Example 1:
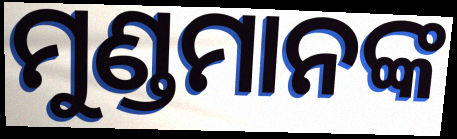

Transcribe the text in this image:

ମୁଣ୍ଡମାନଙ୍କ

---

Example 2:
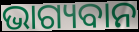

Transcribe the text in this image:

ଭାଗ୍ୟବାନ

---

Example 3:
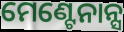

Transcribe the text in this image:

ମେଣ୍ଟେନାନ୍ସ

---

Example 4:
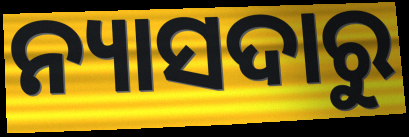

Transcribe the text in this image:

ନ୍ୟାସଦାରୁ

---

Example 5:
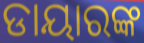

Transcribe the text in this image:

ଡାୟାରଙ୍କ